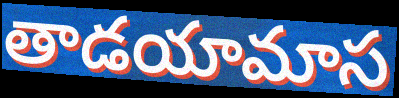
తాడయామాస